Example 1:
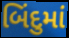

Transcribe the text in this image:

બિંદુમાં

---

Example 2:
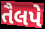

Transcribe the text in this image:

તૈલપે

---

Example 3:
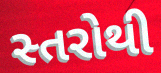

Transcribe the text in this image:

સ્તરોથી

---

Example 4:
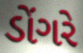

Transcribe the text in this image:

ડોંગરે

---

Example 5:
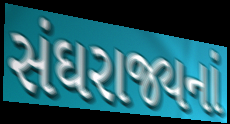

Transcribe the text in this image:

સંઘરાજ્યનાં